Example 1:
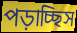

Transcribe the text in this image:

পড়াচ্ছিস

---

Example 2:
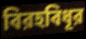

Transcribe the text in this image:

বিরহবিধূর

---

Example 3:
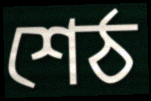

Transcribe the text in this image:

শেঠ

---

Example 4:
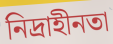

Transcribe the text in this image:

নিদ্রাহীনতা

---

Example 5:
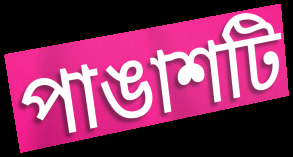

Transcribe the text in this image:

পাঙাশটি